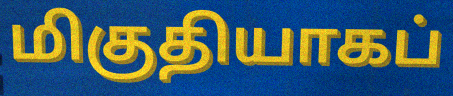
மிகுதியாகப்